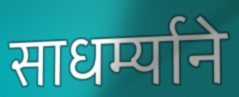
साधर्म्याने